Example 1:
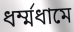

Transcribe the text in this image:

ধর্ম্মধামে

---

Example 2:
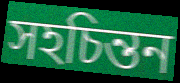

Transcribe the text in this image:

সহচিন্তন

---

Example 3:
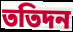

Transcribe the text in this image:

ততিদন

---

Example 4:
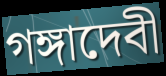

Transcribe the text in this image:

গঙ্গাদেবী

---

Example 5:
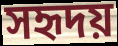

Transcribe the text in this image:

সহৃদয়